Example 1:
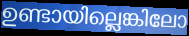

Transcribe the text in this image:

ഉണ്ടായില്ലെങ്കിലോ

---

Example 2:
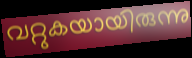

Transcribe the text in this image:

വറ്റുകയായിരുന്നു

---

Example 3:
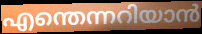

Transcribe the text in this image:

എന്തെന്നറിയാൻ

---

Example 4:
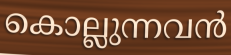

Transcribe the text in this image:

കൊല്ലുന്നവൻ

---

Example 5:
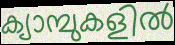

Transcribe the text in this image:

ക്യാമ്പുകളിൽ